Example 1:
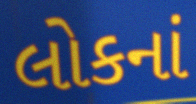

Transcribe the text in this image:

લોકનાં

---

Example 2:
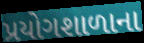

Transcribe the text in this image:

પ્રયોગશાળાના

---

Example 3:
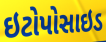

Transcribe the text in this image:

ઇટોપોસાઇડ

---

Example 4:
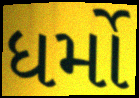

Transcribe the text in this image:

ધર્મો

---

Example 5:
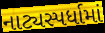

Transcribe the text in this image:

નાટ્યસ્પર્ધામાં